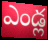
ఎండ్ల